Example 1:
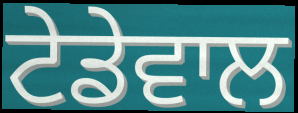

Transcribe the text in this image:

ਟੇਡੇਵਾਲ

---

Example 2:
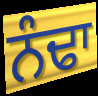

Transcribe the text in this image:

ਨੰਢਾ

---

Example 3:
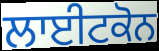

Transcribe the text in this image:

ਲਾਈਟਕੋਨ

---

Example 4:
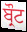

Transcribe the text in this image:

ਬ੍ਰੌਟ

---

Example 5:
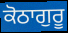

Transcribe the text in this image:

ਕੋਠਾਗੁਰੂ